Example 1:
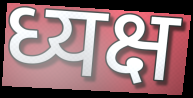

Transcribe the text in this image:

ध्यक्ष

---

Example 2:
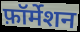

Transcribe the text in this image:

फ़ॉर्मेशन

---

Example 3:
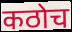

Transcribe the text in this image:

कठोच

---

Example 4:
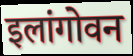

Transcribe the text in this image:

इलांगोवन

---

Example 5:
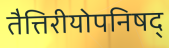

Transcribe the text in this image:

तैत्तिरीयोपनिषद्